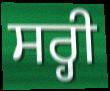
ਸਰ੍ਹੀ